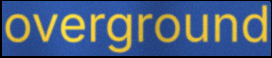
overground